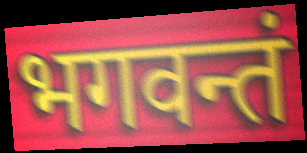
भगवन्तं